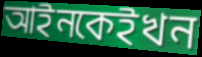
আইনকেইখন